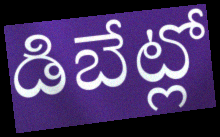
డిబేట్లో